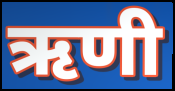
ऋणी